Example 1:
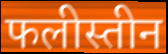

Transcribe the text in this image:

फलीस्तीन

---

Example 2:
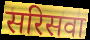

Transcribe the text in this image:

सरिसवा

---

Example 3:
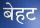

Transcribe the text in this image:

बेहट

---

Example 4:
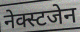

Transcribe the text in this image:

नेक्स्टजेन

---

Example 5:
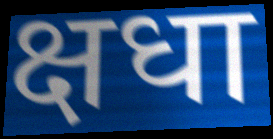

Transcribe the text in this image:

क्षधा